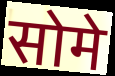
सोमे